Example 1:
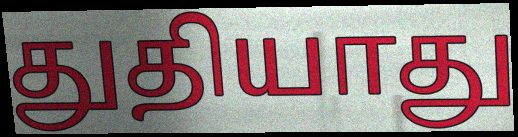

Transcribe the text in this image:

துதியாது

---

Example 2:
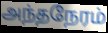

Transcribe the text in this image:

அந்தநேரம்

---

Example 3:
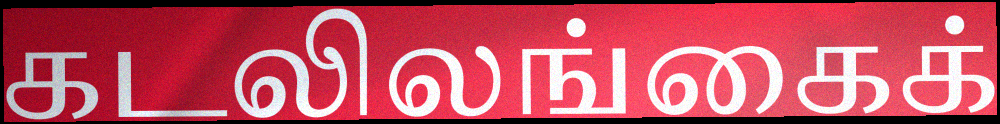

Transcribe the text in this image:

கடலிலங்கைக்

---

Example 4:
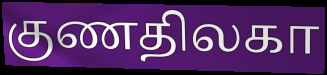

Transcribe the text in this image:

குணதிலகா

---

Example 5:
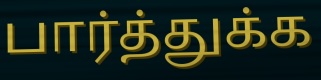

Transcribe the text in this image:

பார்த்துக்க